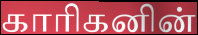
காரிகனின்